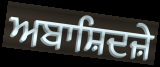
ਅਬਾਸ਼ਿਦਜ਼ੇ